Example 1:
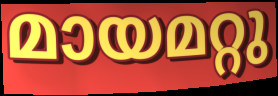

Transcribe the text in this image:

മായമറ്റു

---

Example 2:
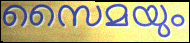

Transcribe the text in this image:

സൈമയും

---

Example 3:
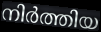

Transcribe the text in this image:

നിർത്തിയ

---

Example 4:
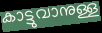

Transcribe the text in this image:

കാട്ടുവാനുള്ള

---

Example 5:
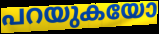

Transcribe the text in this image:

പറയുകയോ